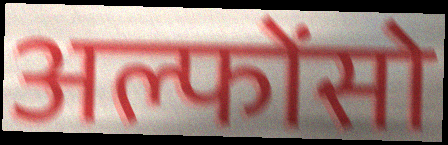
अल्फोंसो